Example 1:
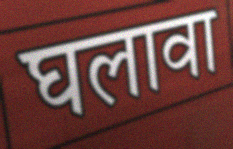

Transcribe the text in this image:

घलावा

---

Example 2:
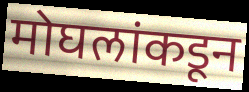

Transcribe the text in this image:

मोघलांकडून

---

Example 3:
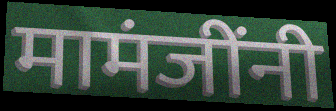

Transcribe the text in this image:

मामंजींनी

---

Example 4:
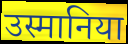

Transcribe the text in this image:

उस्मानिया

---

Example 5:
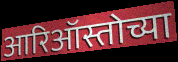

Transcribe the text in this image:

आरिऑस्तोच्या